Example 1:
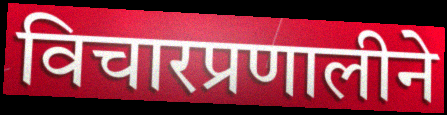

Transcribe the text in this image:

विचारप्रणालीने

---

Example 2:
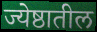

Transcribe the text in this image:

ज्येष्ठातील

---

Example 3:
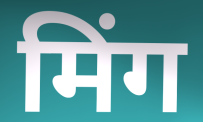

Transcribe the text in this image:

मिंग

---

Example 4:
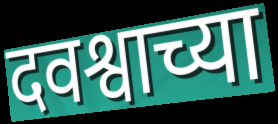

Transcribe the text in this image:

दवश्वाच्या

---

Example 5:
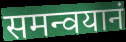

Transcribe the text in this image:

समन्वयानं